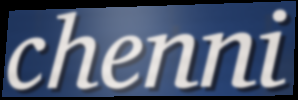
chenni